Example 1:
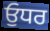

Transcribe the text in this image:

ਓੁਧਰ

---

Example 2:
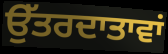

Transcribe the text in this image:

ਉੱਤਰਦਾਤਾਵਾਂ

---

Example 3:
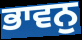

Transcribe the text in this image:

ਭਾਵਨੁ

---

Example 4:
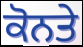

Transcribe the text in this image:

ਕੋਨਤੇ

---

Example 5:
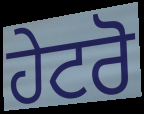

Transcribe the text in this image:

ਹੇਟਰੋ